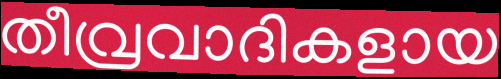
തീവ്രവാദികളായ